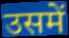
उसमें